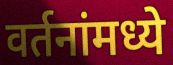
वर्तनांमध्ये